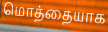
மொத்தையாக